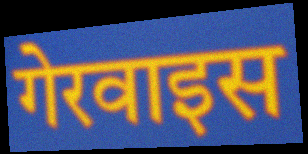
गेरवाइस